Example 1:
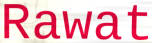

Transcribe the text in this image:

Rawat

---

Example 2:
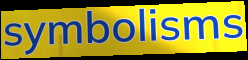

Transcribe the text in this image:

symbolisms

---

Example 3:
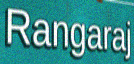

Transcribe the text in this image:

Rangaraj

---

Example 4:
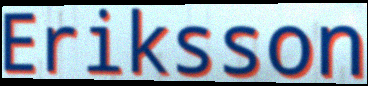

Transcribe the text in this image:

Eriksson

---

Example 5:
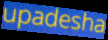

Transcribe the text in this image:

upadesha